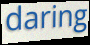
daring